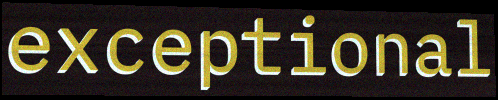
exceptional